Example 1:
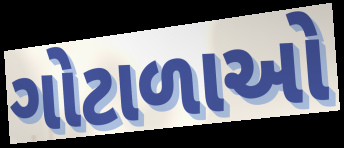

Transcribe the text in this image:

ગોટાળાઓ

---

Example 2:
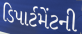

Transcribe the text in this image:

ડિપાર્ટમેંટની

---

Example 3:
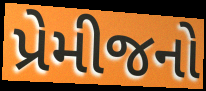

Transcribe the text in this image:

પ્રેમીજનો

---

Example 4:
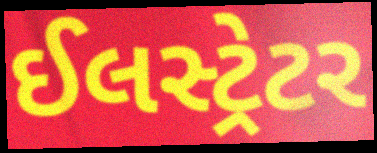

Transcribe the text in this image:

ઈલસ્ટ્રેટર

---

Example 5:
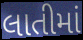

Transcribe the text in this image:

લાતીમાં